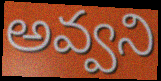
అవ్వని